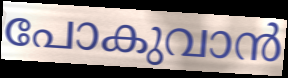
പോകുവാൻ